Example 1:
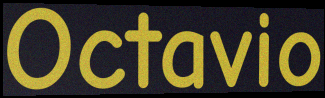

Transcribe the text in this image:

Octavio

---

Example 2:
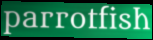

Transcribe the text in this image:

parrotfish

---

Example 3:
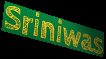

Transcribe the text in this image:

Sriniwas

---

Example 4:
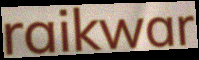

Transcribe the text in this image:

raikwar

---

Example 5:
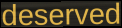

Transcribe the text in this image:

deserved